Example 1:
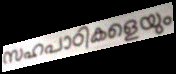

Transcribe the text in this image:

സഹപാഠികളെയും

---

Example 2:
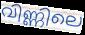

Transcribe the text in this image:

വിണ്ണിലെ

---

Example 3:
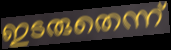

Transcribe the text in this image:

ഇടരുതെന്ന്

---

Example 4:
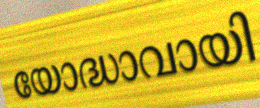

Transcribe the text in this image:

യോദ്ധാവായി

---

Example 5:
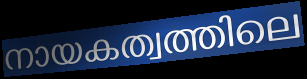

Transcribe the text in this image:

നായകത്വത്തിലെ